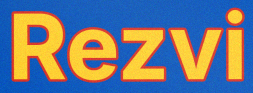
Rezvi